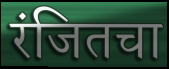
रंजितचा